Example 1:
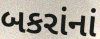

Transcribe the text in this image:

બકરાંનાં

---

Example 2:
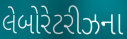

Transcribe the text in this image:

લેબોરેટરીઝના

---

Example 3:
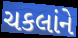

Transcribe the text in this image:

ચકલાંને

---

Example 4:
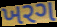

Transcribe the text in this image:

ખરગ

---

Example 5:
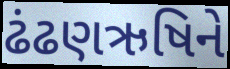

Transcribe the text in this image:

ઢંઢણઋષિને